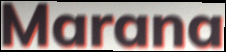
Marana